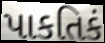
પાકતિકં